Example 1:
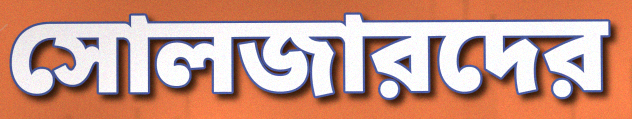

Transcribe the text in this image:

সোলজারদের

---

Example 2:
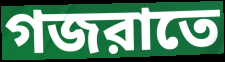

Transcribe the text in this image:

গজরাতে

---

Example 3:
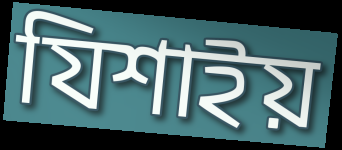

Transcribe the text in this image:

যিশাইয়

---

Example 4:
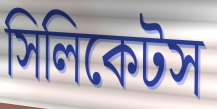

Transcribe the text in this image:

সিলিকেটস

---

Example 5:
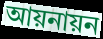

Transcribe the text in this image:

আয়নায়ন